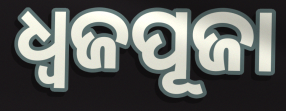
ଧ୍ୱଜପୂଜା